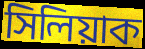
সিলিয়াক